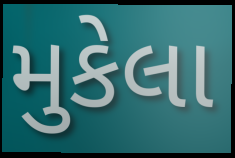
મુકેલા